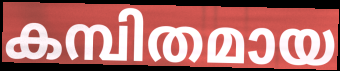
കമ്പിതമായ